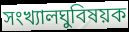
সংখ্যালঘুবিষয়ক